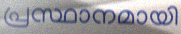
പ്രസ്ഥാനമായി